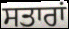
ਸਤਾਰਾਂ